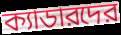
ক্যাডারদের